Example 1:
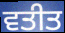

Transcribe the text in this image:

ਵਤੀਤ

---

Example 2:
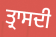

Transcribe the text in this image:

ਤ੍ਰਾਸਦੀ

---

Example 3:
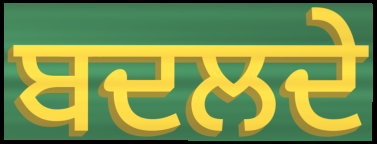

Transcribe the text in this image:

ਬਦਲਦੇ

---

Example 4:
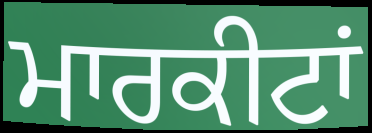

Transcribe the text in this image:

ਮਾਰਕੀਟਾਂ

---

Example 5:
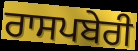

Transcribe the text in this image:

ਰਾਸਪਬੇਰੀ